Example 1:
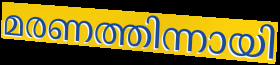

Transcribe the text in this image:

മരണത്തിന്നായി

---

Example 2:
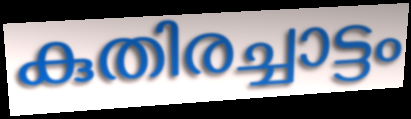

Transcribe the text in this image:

കുതിരച്ചാട്ടം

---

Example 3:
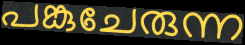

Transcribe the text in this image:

പങ്കുചേരുന്ന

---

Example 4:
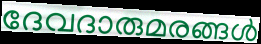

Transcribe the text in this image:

ദേവദാരുമരങ്ങൾ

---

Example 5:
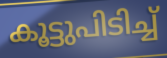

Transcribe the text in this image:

കൂട്ടുപിടിച്ച്